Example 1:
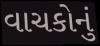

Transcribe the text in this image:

વાચકોનું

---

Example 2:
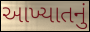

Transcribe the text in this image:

આખ્યાતનું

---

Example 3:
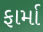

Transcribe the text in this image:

ફાર્મા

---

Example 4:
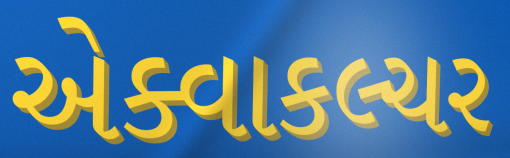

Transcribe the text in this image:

એક્વાકલ્ચર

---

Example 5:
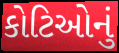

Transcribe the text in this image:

કોટિઓનું